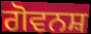
ਗੋਵਨਸ਼